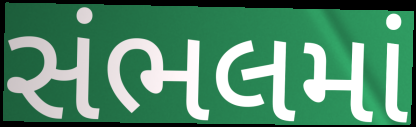
સંભલમાં